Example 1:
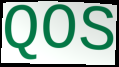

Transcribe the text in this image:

QOS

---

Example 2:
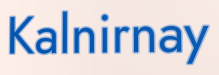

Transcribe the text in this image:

Kalnirnay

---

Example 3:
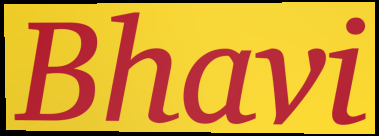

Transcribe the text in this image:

Bhavi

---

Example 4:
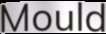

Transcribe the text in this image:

Mould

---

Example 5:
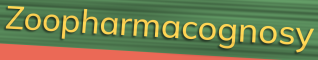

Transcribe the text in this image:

Zoopharmacognosy